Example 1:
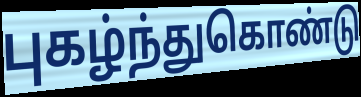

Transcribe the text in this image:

புகழ்ந்துகொண்டு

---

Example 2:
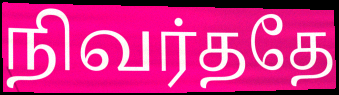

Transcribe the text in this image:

நிவர்ததே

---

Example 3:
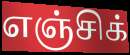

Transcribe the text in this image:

எஞ்சிக்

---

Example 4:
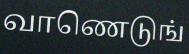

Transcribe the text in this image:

வாணெடுங்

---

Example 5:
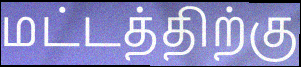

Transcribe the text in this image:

மட்டத்திற்கு